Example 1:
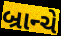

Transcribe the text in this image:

બ્રાન્ચે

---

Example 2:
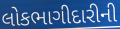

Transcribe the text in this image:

લોકભાગીદારીની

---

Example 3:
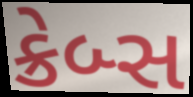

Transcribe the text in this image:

ક્રેબ્સ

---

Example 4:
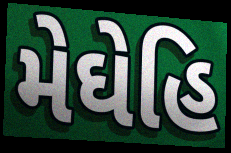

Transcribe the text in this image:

મેઘેહિ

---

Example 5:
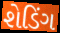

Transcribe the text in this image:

શેડિંગ